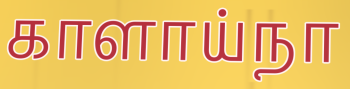
காளாய்நா